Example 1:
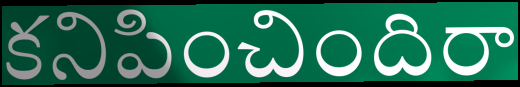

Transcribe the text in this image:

కనిపించిందిరా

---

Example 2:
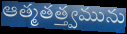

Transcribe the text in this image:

ఆత్మతత్త్వమును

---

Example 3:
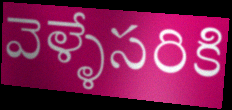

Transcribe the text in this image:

వెళ్ళేసరికి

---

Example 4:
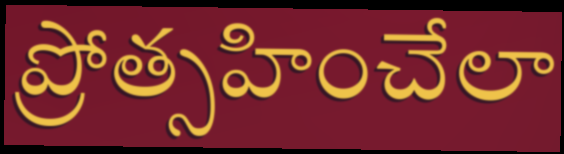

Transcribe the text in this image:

ప్రోత్సహించేలా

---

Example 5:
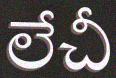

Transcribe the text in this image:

లేచీ